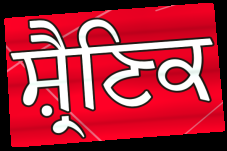
ਸ਼੍ਰੈਣਿਕ